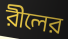
রীলের